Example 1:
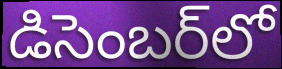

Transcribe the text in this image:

డిసెంబర్‌లో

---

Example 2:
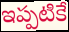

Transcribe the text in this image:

ఇప్పటికే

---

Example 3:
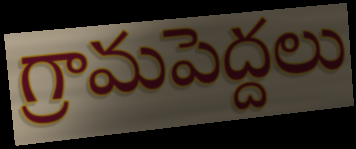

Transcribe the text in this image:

గ్రామపెద్దలు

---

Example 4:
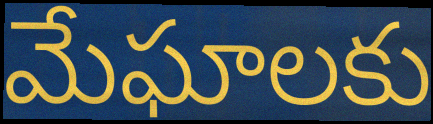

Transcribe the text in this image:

మేఘాలకు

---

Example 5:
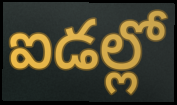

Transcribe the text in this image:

ఐడల్లో